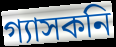
গ্যাসকনি